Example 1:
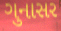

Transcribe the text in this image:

ગુનાસર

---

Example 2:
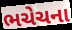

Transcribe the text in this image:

ભચેચના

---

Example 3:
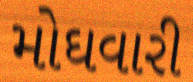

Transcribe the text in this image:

મોઘવારી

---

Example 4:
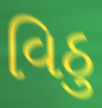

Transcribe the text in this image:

વિઠુ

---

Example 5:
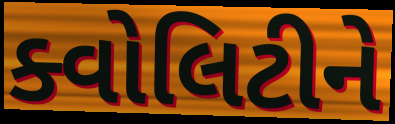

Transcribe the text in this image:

ક્વોલિટીને